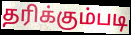
தரிக்கும்படி